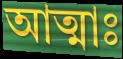
আত্মাঃ